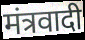
मंत्रवादी